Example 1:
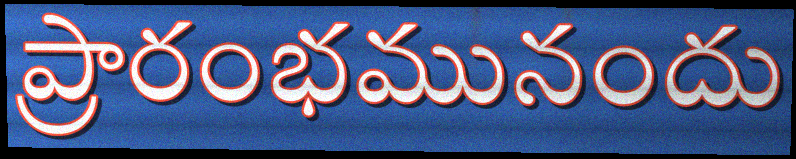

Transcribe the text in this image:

ప్రారంభమునందు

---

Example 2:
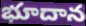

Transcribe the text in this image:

భూదాన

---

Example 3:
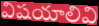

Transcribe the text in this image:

విషయాలివి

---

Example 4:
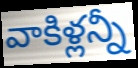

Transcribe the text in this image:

వాకిళ్లన్నీ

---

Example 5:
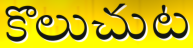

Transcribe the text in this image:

కొలుచుట